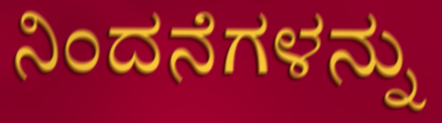
ನಿಂದನೆಗಳನ್ನು